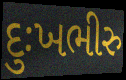
દુઃખભીરુ